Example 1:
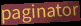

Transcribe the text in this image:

paginator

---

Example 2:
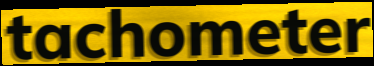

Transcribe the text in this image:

tachometer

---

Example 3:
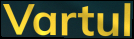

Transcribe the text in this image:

Vartul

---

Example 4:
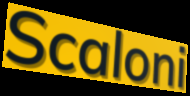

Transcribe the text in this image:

Scaloni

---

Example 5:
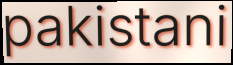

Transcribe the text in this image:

pakistani